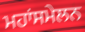
ਮਹਾਂਸਮੇਲਨ